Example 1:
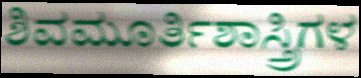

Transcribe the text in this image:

ಶಿವಮೂರ್ತಿಶಾಸ್ತ್ರಿಗಳ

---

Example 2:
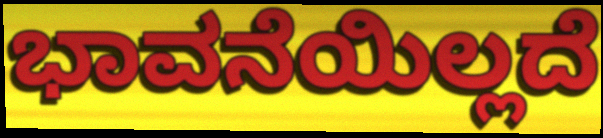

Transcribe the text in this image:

ಭಾವನೆಯಿಲ್ಲದೆ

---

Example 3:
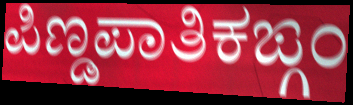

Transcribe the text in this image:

ಪಿಣ್ಡಪಾತಿಕಙ್ಗಂ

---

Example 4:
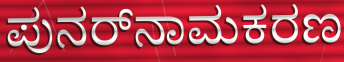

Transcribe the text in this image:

ಪುನರ್‌ನಾಮಕರಣ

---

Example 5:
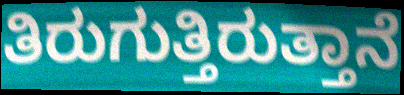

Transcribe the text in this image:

ತಿರುಗುತ್ತಿರುತ್ತಾನೆ